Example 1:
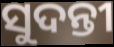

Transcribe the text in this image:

ସୁଦନ୍ତୀ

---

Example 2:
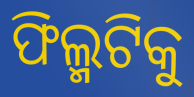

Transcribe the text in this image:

ଫିଲ୍ମଟିକୁ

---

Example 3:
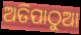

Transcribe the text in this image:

ଅତିପାଠୁଆ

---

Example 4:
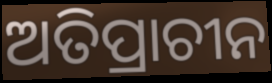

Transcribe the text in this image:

ଅତିପ୍ରାଚୀନ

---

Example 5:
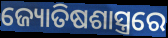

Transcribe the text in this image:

ଜ୍ୟୋତିଷଶାସ୍ତ୍ରରେ